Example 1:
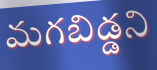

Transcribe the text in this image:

మగబిడ్డని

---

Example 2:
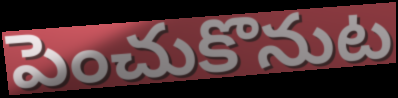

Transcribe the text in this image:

పెంచుకొనుట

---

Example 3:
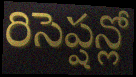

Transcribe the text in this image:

రిసెప్షన్లో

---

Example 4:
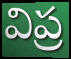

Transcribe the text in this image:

విప్ర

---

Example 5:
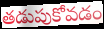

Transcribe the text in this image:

తడుపుకోవడం